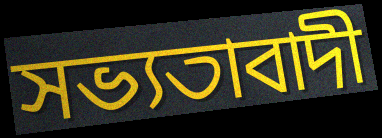
সভ্যতাবাদী